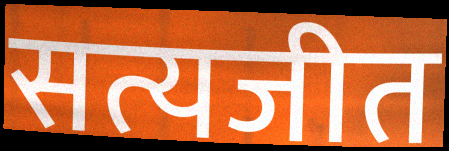
सत्यजीत